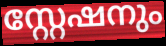
സ്റ്റേഷനും